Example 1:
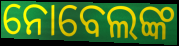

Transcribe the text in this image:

ନୋବେଲଙ୍କ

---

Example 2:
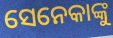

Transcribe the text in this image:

ସେନେକାଙ୍କୁ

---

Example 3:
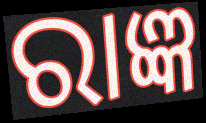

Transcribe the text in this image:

ରାଜ୍ଞ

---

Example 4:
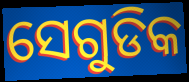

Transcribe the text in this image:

ସେଗୁଡିକ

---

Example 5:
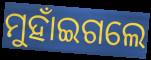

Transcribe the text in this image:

ମୁହାଁଇଗଲେ